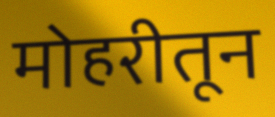
मोहरीतून